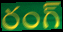
రంగ్